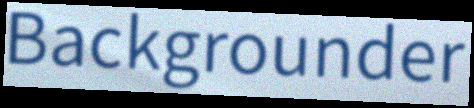
Backgrounder